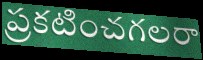
ప్రకటించగలరా